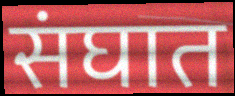
संघात